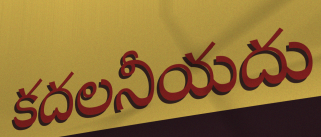
కదలనీయదు